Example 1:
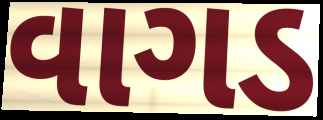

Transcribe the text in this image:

વાગડ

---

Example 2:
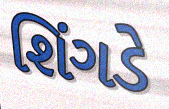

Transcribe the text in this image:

શિંગડે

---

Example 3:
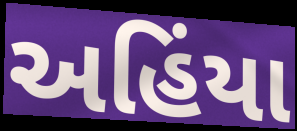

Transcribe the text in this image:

અહિંયા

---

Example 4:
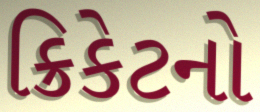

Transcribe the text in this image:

ક્રિકેટનો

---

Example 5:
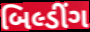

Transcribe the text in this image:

બિલ્ડીંગ